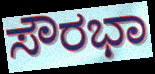
ಸೌರಭಾ